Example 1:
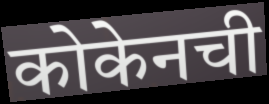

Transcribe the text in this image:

कोकेनची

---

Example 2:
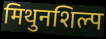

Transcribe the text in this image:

मिथुनशिल्प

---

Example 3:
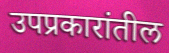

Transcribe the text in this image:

उपप्रकारांतील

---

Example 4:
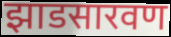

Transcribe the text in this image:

झाडसारवण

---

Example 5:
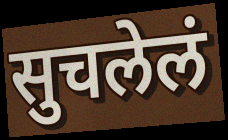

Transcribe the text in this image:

सुचलेलं